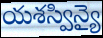
యశస్విన్యై